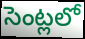
సెంట్లలో